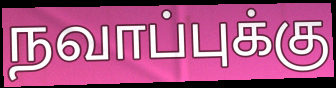
நவாப்புக்கு